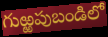
గుఱ్ఱపుబండిలో